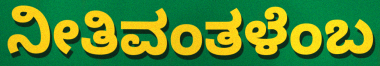
ನೀತಿವಂತಳೆಂಬ